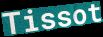
Tissot